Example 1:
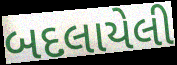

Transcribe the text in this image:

બદલાયેલી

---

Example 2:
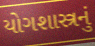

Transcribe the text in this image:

યોગશાસ્ત્રનું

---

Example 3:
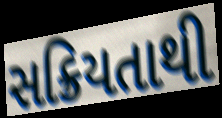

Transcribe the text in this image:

સક્રિયતાથી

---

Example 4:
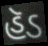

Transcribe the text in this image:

હૅડ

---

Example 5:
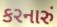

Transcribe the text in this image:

કરનારું